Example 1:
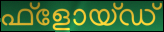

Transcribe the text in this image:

ഫ്ളോയ്ഡ്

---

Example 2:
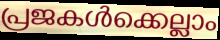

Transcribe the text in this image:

പ്രജകൾക്കെല്ലാം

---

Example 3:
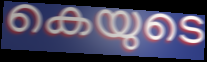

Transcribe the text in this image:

കെയുടെ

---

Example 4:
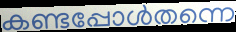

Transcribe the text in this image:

കണ്ടപ്പോൾതന്നെ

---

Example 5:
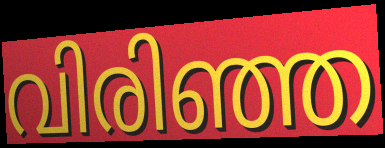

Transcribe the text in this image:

വിരിഞ്ഞ